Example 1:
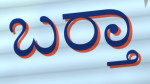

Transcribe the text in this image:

ಬರ‍್ತಾ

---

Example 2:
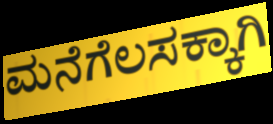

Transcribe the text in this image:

ಮನೆಗೆಲಸಕ್ಕಾಗಿ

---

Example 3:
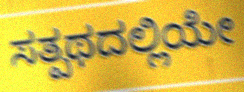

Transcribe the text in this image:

ಸತ್ಪಥದಲ್ಲಿಯೇ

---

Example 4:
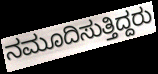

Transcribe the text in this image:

ನಮೂದಿಸುತ್ತಿದ್ದರು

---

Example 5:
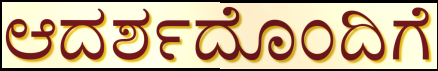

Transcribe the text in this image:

ಆದರ್ಶದೊಂದಿಗೆ